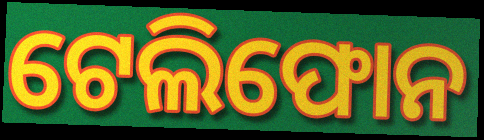
ଟେଲିଫୋନ